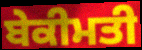
ਬੇਕੀਮਤੀ